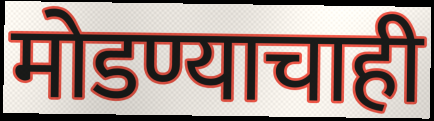
मोडण्याचाही